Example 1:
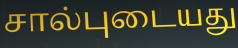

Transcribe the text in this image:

சால்புடையது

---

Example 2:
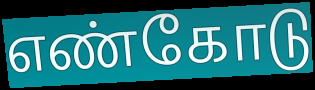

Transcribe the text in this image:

எண்கோடு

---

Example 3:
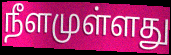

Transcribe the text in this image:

நீளமுள்ளது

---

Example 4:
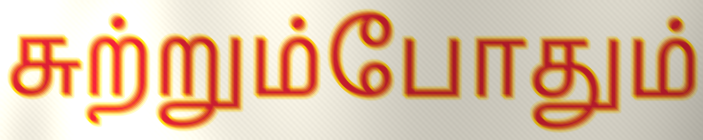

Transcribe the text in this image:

சுற்றும்போதும்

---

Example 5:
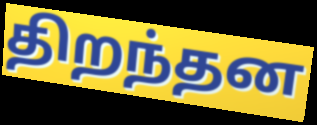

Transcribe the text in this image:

திறந்தன